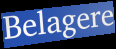
Belagere